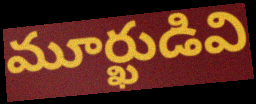
మూర్ఖుడివి